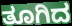
ತೂಗಿದ